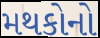
મથકોનો